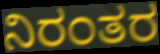
ನಿರಂತರ